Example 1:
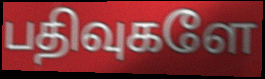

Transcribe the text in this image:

பதிவுகளே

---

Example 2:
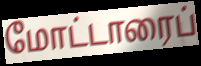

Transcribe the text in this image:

மோட்டாரைப்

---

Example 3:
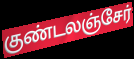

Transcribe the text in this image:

குண்டலஞ்சேர்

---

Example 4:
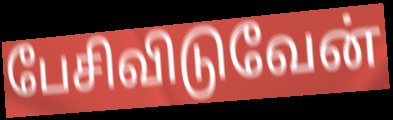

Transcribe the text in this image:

பேசிவிடுவேன்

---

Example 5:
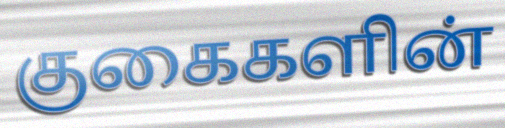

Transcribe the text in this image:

குகைகளின்